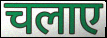
चलाए